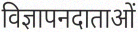
विज्ञापनदाताओं